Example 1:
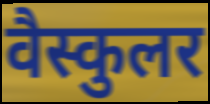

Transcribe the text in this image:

वैस्कुलर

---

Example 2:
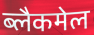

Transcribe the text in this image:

ब्लैकमेल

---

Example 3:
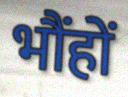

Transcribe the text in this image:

भौंहों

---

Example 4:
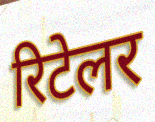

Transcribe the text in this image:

रिटेलर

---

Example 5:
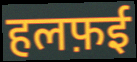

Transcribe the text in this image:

हलफ़ई